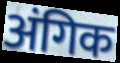
अंगिक